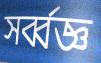
সৰ্ব্বজ্ঞ